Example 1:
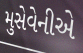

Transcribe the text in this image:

મુસેવેનીએ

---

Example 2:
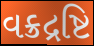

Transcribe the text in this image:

વક્રદ્રષ્ટિ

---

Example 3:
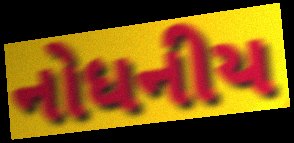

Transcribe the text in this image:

નોધનીય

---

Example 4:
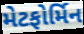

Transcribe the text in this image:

મેટફોર્મિન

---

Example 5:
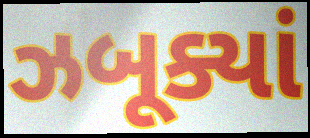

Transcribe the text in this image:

ઝબૂક્યાં